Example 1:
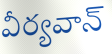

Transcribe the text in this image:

వీర్యవాన్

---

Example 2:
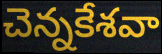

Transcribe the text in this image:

చెన్నకేశవా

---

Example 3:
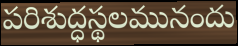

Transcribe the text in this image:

పరిశుద్ధస్థలమునందు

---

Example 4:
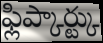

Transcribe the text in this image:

ఫ్లిప్కార్ట్కు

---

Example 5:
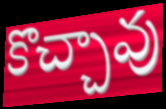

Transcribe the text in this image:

కొచ్చావు